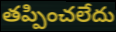
తప్పించలేదు